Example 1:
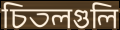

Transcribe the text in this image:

চিতলগুলি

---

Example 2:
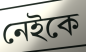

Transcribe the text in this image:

নেইকে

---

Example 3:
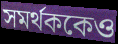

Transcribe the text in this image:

সমর্থককেও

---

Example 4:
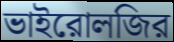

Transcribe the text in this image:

ভাইরোলজির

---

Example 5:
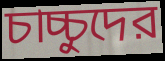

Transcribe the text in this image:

চাচ্চুদের